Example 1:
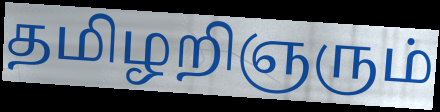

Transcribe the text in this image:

தமிழறிஞரும்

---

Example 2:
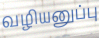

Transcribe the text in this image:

வழியனுப்பு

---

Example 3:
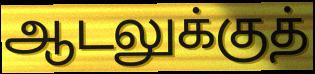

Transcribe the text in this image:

ஆடலுக்குத்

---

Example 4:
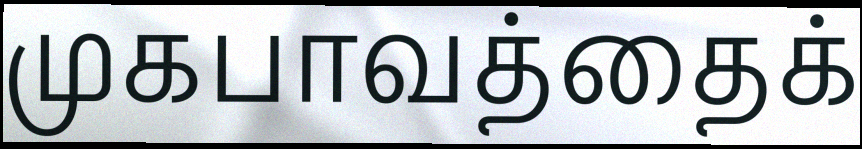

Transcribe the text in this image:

முகபாவத்தைக்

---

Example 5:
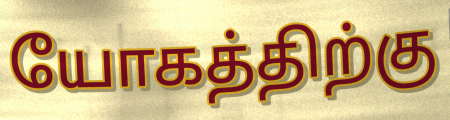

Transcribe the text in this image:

யோகத்திற்கு